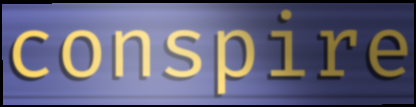
conspire